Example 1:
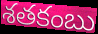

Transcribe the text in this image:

శతకంబు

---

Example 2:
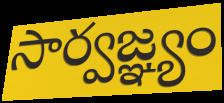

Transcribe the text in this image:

సార్వజ్ఞ్యం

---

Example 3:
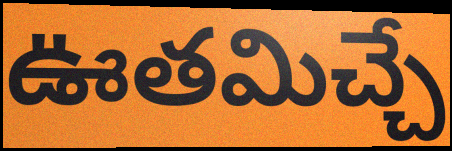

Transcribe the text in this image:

ఊతమిచ్చే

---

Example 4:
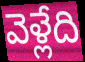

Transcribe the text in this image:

వెళ్లేది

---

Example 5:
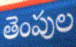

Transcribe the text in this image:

తెంపుల